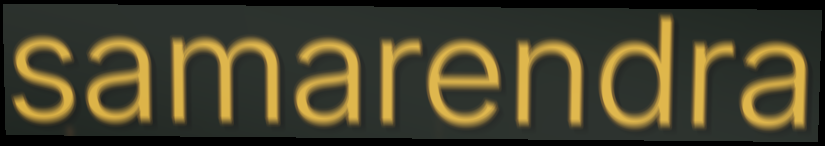
samarendra